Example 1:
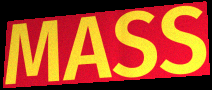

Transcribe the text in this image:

MASS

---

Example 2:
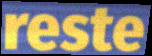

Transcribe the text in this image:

reste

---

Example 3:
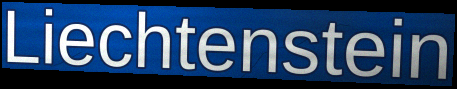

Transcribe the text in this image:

Liechtenstein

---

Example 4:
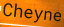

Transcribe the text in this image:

Cheyne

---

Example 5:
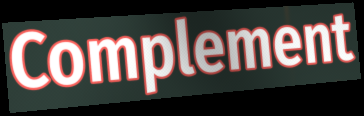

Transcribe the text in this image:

Complement